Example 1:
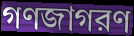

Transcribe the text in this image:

গণজাগরণ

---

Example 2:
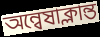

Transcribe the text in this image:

অন্বেষাক্লান্ত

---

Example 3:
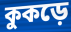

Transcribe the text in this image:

কুকড়ে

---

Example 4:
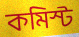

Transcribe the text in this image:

কমিস্ট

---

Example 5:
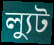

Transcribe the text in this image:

ল্যুট